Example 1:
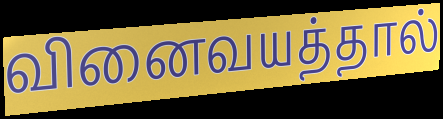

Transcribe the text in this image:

வினைவயத்தால்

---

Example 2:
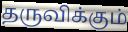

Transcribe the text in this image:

தருவிக்கும்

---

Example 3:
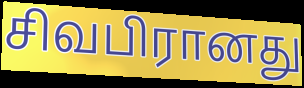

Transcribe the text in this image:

சிவபிரானது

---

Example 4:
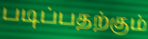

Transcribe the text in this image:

படிப்பதற்கும்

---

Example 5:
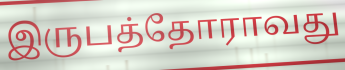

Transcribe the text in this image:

இருபத்தோராவது